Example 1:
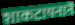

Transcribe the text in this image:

शाकटायनानें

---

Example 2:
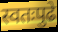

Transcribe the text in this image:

स्वतःपुढे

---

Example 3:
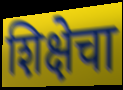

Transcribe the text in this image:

शिक्षेचा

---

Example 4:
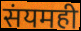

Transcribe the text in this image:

संयमही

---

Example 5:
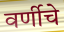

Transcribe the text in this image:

वर्णीचे